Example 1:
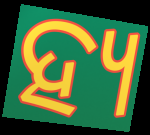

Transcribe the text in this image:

ହ୍ୟ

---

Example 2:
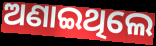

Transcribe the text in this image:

ଅଣାଇଥିଲେ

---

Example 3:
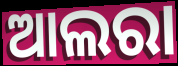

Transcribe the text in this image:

ଆଲରା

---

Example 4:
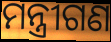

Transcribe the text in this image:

ମନ୍ତ୍ରୀଗଣ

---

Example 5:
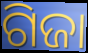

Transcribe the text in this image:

ଗିଜା